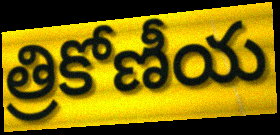
త్రికోణీయ